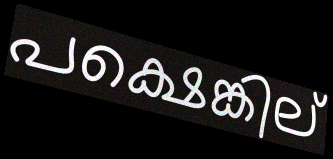
പക്ഷെങ്കില്